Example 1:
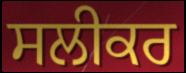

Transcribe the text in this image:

ਸਲੀਕਰ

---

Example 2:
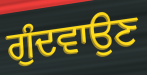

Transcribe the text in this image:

ਗੁੰਦਵਾਉਣ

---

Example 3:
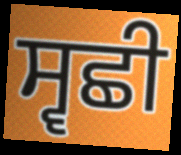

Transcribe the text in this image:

ਸ੍ਵਛੀ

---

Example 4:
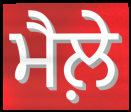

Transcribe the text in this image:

ਮੈਲ਼ੇ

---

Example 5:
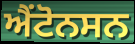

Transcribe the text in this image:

ਐਂਟੋਨਸਨ